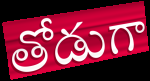
తోడుగా